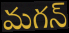
మగన్